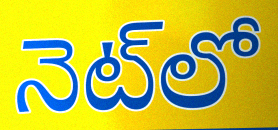
నెట్‌లో